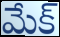
మేక్